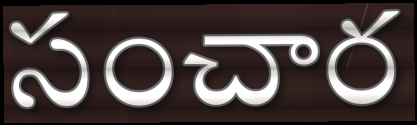
సంచార